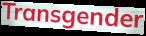
Transgender